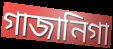
গাজানিগা